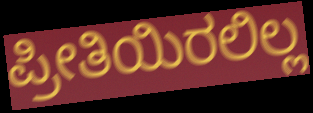
ಪ್ರೀತಿಯಿರಲಿಲ್ಲ